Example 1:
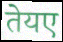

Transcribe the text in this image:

तेयए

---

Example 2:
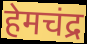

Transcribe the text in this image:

हेमचंद्र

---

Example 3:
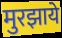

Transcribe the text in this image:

मुरझाये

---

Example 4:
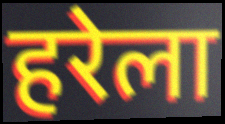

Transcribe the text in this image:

हरेला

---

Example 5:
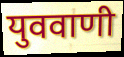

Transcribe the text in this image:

युववाणी